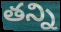
తన్ని